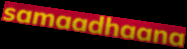
samaadhaana